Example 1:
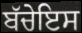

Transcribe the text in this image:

ਬੱਚੇਇਸ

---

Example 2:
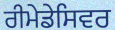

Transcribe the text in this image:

ਰੀਮੇਡੇਸਿਵਰ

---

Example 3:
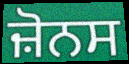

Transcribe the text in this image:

ਜ਼ੋਨਸ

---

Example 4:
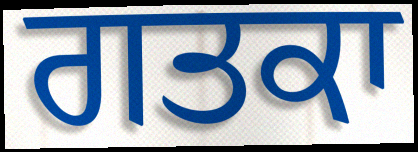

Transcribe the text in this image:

ਗਤਕਾ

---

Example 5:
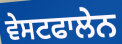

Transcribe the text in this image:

ਵੇਸਟਫਾਲੇਨ